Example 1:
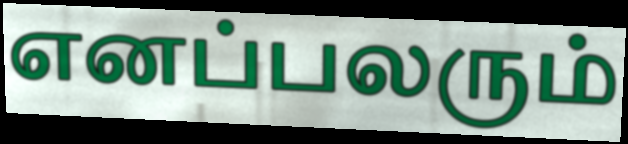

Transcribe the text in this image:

எனப்பலரும்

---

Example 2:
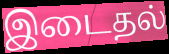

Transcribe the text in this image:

இடைதல்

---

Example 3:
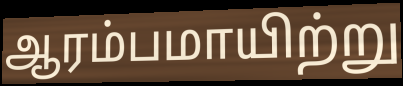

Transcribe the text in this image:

ஆரம்பமாயிற்று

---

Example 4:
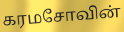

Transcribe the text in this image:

கரமசோவின்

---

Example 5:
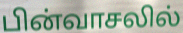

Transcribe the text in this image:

பின்வாசலில்